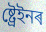
ষ্ট্ৰেইনৰ